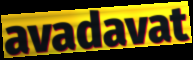
avadavat